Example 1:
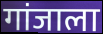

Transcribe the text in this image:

गांजाला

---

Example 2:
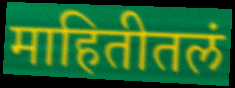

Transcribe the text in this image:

माहितीतलं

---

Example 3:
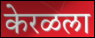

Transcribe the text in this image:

केरळला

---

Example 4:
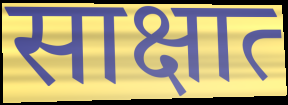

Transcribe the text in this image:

साक्षात्‍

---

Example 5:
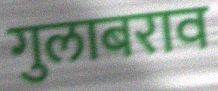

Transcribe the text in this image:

गुलाबराव